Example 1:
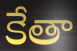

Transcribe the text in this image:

కేతా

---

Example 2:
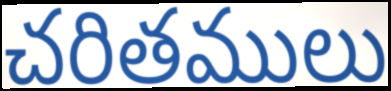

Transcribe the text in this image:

చరితములు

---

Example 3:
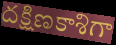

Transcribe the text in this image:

దక్షిణకాశిగా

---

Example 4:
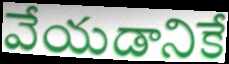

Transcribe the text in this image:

వేయడానికే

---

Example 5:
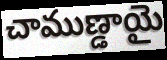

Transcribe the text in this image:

చాముణ్డాయై